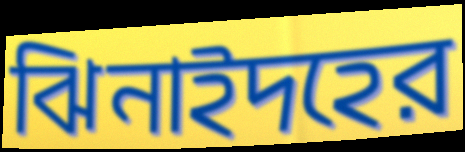
ঝিনাইদহের